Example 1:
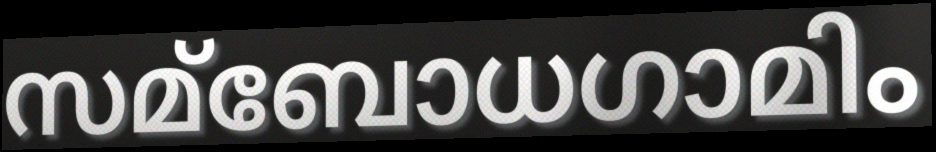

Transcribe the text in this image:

സമ്ബോധഗാമിം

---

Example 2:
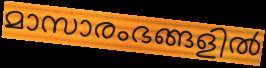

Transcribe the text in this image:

മാസാരംഭങ്ങളിൽ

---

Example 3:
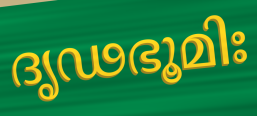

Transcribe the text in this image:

ദൃഢഭൂമിഃ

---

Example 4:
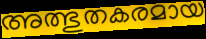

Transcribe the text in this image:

അത്ഭുതകരമായ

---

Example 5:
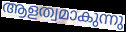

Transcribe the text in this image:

ആളത്വമാകുന്നു